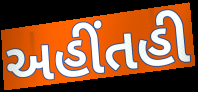
અહીંતહી